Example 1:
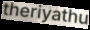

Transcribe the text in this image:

theriyathu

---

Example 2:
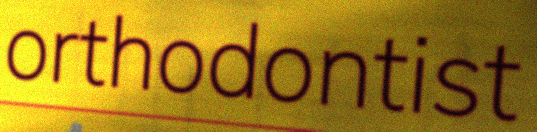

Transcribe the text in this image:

orthodontist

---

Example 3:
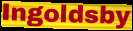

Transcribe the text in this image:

Ingoldsby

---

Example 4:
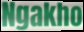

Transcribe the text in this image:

Ngakho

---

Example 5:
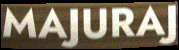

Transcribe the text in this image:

MAJURAJ